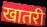
खातरी